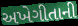
અખેગીતાની